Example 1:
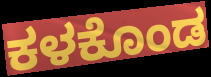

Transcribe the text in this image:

ಕಳಕೊಂಡ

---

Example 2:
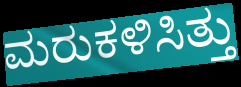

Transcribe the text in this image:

ಮರುಕಳಿಸಿತ್ತು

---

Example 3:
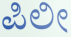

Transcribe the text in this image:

ಪಿಲೀ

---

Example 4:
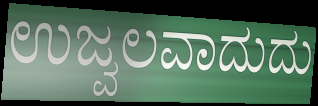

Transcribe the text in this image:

ಉಜ್ವಲವಾದುದು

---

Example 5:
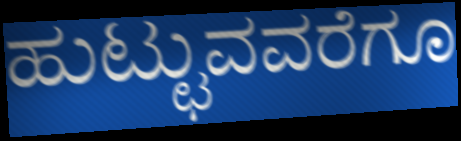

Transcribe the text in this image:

ಹುಟ್ಟುವವರೆಗೂ